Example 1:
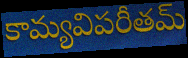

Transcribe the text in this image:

కామ్యవిపరీతమ్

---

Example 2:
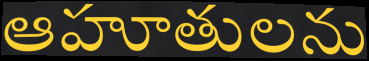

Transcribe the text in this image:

ఆహూతులను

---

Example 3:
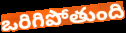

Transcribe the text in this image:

ఒరిగిపోతుంది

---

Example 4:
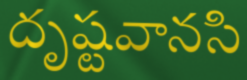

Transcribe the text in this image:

దృష్టవానసి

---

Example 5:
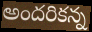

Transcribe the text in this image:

అందరికన్న